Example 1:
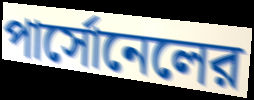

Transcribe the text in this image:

পার্সোনেলের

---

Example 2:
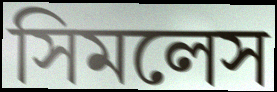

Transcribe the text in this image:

সিমলেস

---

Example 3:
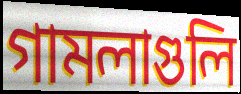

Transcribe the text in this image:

গামলাগুলি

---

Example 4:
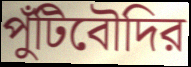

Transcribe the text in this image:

পুঁটিবৌদির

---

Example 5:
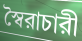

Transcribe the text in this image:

স্বৈরাচারী